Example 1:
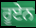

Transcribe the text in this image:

ਰੂਏਨ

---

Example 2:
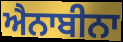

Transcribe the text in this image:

ਐਨਾਬੀਨਾ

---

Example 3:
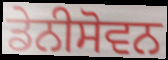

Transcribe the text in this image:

ਡੇਨੀਸੋਵਨ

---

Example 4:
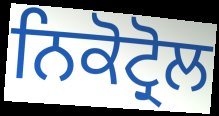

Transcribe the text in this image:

ਨਿਕੋਟ੍ਰੋਲ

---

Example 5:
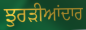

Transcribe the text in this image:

ਝੁਰੜੀਆਂਦਾਰ